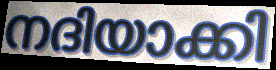
നദിയാക്കി